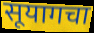
सूयागचा